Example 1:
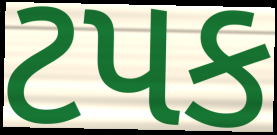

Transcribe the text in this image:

ટપક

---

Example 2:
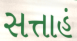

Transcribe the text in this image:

સત્તાહં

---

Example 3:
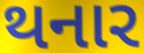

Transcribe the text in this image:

થનાર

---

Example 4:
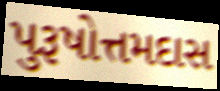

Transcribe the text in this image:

પુરૂષોત્તમદાસ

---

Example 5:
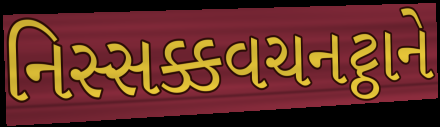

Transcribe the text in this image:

નિસ્સક્કવચનટ્ઠાને